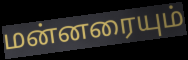
மன்னரையும்